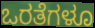
ಒರತೆಗಳೂ